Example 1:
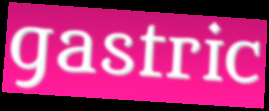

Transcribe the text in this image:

gastric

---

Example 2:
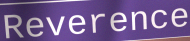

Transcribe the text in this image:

Reverence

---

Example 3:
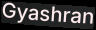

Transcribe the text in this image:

Gyashran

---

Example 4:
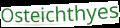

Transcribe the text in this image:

Osteichthyes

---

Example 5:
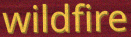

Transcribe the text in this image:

wildfire